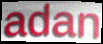
adan